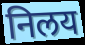
निलय